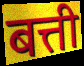
बत्ती